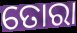
ତୋରା